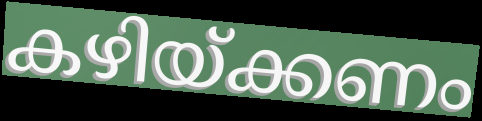
കഴിയ്ക്കണം